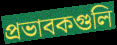
প্রভাবকগুলি